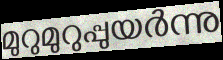
മുറുമുറുപ്പുയർന്നു